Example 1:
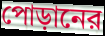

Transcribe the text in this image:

পোড়ানের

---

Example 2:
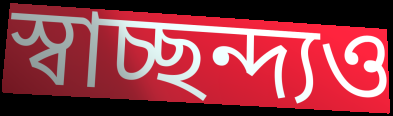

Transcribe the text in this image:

স্বাচ্ছন্দ্যও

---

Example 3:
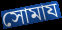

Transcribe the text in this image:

সোমায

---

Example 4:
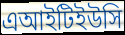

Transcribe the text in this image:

এআইটিইউসি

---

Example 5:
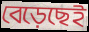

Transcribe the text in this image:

বেড়েছেই